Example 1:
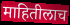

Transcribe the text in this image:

माहितीलाच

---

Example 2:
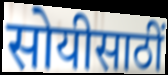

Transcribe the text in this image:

सोयीसाठीं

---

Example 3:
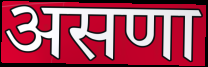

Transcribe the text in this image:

असणा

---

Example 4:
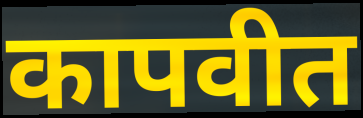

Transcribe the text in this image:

कापवीत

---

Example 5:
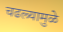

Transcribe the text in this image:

चढल्यामुळे